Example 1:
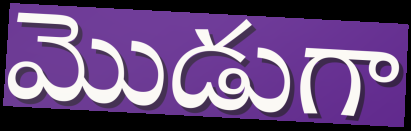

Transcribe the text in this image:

మొడుగా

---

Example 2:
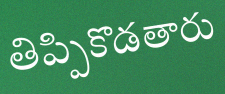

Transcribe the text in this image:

తిప్పికొడతారు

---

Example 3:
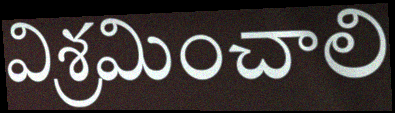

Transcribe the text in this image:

విశ్రమించాలి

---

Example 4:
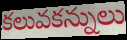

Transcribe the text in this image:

కలువకన్నులు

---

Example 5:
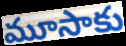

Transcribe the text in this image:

మూసాకు